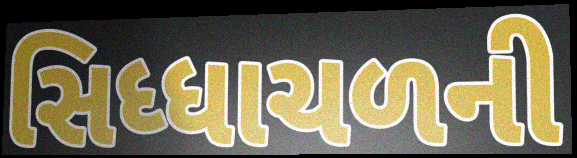
સિધ્ધાચળની